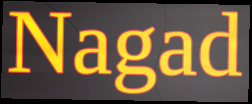
Nagad